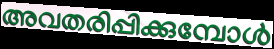
അവതരിപ്പിക്കുമ്പോൾ